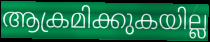
ആക്രമിക്കുകയില്ല